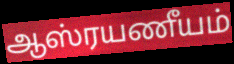
ஆஸ்ரயணீயம்